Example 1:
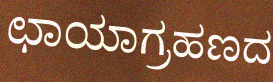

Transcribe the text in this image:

ಛಾಯಾಗ್ರಹಣದ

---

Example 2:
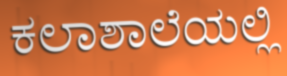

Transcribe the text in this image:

ಕಲಾಶಾಲೆಯಲ್ಲಿ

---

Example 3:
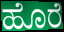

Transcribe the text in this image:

ಹೊರೆ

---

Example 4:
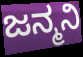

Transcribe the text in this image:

ಜನ್ಮನಿ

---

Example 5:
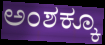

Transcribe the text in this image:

ಅಂಶಕ್ಕೂ